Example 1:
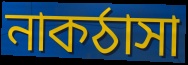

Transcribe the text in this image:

নাকঠাসা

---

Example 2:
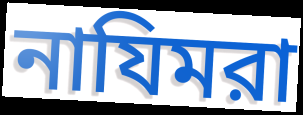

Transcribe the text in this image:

নাযিমরা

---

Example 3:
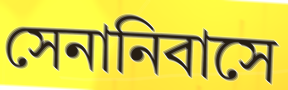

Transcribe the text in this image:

সেনানিবাসে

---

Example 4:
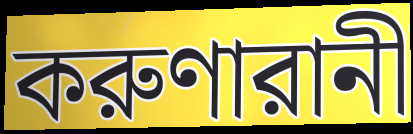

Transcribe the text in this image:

করুণারানী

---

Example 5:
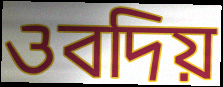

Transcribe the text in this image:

ওবদিয়